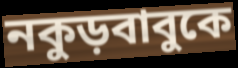
নকুড়বাবুকে